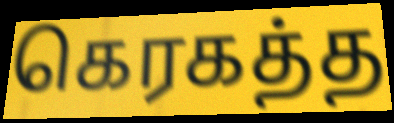
கெரகத்த